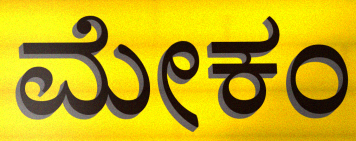
ಮೇಕಂ